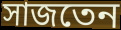
সাজতেন